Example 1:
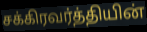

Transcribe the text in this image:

சக்கிரவர்த்தியின்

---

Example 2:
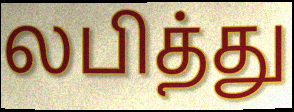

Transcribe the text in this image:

லபித்து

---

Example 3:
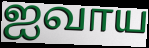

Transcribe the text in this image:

ஐவாய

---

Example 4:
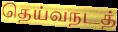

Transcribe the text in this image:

தெய்வநடத்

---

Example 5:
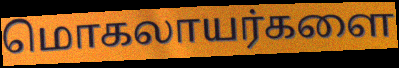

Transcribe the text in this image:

மொகலாயர்களை